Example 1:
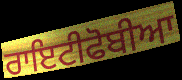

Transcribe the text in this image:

ਰਾਇਟੀਫੋਬੀਆ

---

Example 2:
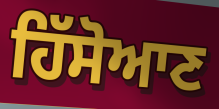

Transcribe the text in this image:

ਹਿੱਸੋਆਣ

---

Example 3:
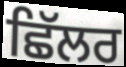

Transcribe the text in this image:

ਛਿੱਲਰ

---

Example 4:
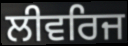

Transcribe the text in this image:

ਲੀਵਰਿਜ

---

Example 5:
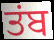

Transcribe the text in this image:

ਤਂਬ